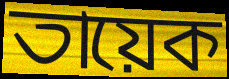
তায়েক